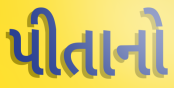
પીતાનો